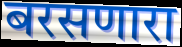
बरसणारा